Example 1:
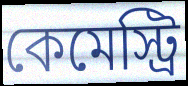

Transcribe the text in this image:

কেমেস্ট্রি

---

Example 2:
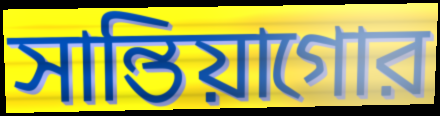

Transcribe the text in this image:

সান্তিয়াগোর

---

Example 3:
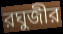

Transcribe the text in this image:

রঘুজীর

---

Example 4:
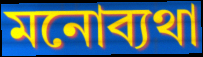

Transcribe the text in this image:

মনোব্যথা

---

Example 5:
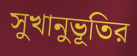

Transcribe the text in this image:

সুখানুভূতির